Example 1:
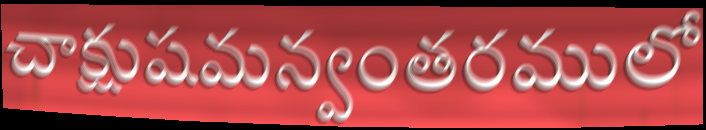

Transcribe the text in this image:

చాక్షుషమన్వంతరములో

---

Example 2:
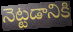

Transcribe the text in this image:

నెట్టడానికి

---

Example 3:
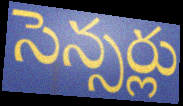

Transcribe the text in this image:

సెన్సర్లు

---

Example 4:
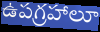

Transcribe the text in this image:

ఉపగ్రహాలూ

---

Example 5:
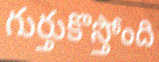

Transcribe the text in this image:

గుర్తుకొస్తోంది